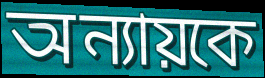
অন্যায়কে